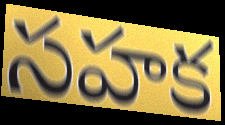
సహక